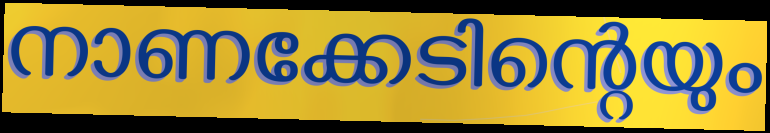
നാണക്കേടിന്റെയും